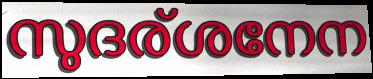
സുദര്ശനേന